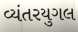
વ્યંતરયુગલ